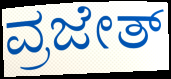
ವ್ರಜೇತ್